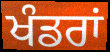
ਖੰਡਰਾਂ